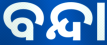
ବନ୍ଦା